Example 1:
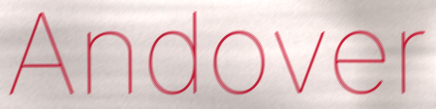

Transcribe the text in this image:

Andover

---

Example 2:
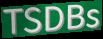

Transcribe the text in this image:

TSDBs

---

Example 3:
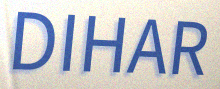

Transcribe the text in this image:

DIHAR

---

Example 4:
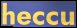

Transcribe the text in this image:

heccu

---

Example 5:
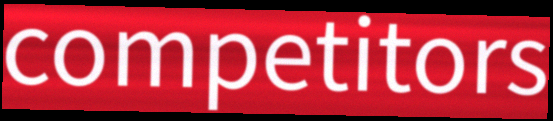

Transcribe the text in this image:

competitors